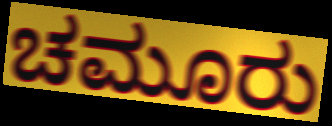
ಚಮೂರು